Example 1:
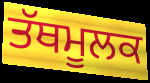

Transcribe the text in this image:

ਤੱਥਮੂਲਕ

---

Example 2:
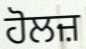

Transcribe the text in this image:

ਹੋਲਜ਼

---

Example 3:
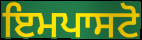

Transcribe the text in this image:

ਇਮਪਾਸਟੋ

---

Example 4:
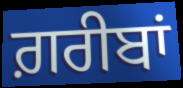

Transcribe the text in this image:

ਗ਼ਰੀਬਾਂ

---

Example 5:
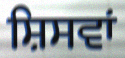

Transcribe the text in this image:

ਸ਼ਿਸਵਾਂ